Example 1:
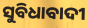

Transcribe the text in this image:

ସୁବିଧାବାଦୀ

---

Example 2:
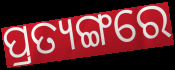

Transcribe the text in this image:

ପ୍ରତ୍ୟଙ୍ଗରେ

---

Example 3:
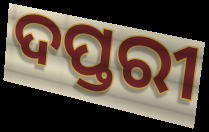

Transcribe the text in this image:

ଦପ୍ତରୀ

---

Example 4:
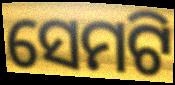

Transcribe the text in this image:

ସେମଟି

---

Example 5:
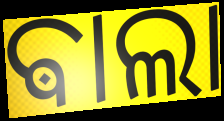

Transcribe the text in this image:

ଵାଲା